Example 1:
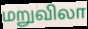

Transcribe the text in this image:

மறுவிலா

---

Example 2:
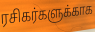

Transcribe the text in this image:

ரசிகர்களுக்காக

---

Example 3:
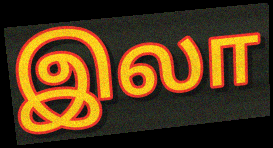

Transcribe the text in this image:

இலா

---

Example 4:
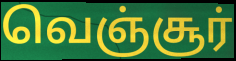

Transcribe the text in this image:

வெஞ்சூர்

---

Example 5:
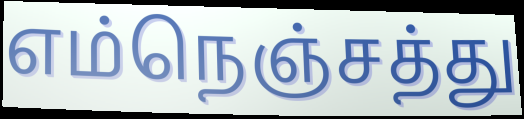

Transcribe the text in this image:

எம்நெஞ்சத்து